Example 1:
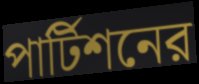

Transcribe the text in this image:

পার্টিশনের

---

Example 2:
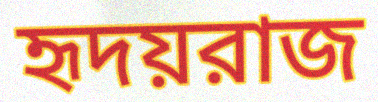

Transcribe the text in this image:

হৃদয়রাজ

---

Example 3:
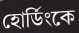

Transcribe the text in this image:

হোর্ডিংকে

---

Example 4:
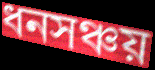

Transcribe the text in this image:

ধনসঞ্চয়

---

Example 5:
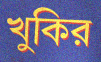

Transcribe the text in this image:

খুকির